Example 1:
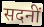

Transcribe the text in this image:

सदनीं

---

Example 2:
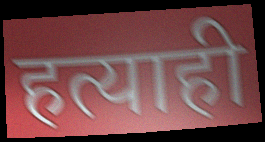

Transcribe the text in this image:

हत्याही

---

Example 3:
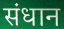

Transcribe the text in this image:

संधान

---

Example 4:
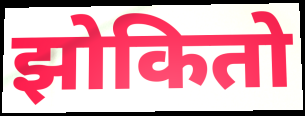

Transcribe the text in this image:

झोकितो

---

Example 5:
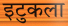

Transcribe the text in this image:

इटुकला